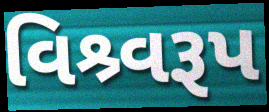
વિશ્ર્વરૂપ